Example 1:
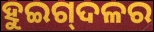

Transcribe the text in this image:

ହୁଇଗ୍‌ଦଳର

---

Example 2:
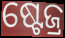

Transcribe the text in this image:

ଷ୍ଟେଜ୍ର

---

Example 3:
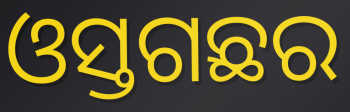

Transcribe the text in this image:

ଓସ୍ତଗଛର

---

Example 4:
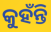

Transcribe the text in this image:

କୁହଁନ୍ତି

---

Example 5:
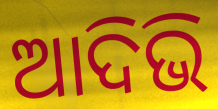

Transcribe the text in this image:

ଆଦିଭି